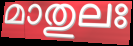
മാതുലഃ